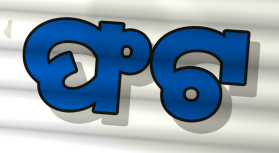
ଫଟ